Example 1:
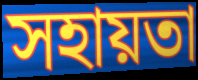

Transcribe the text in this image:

সহায়তা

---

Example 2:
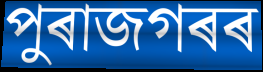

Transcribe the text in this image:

পুৰাজগৰৰ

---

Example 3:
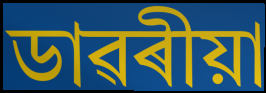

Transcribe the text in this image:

ডাৱৰীয়া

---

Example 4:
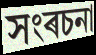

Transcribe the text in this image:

সংৰচনা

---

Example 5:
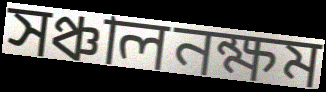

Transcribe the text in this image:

সঞ্চালনক্ষম